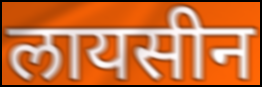
लायसीन